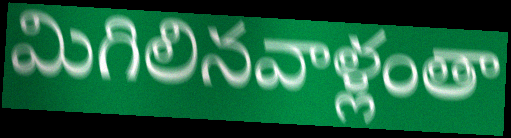
మిగిలినవాళ్లంతా